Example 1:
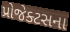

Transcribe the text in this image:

પ્રોજેક્ટસના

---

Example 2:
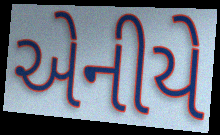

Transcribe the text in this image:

એનીયે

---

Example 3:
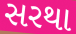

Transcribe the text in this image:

સરથા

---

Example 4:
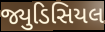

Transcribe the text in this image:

જ્યુડિસિયલ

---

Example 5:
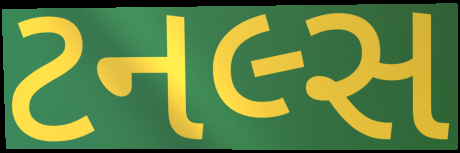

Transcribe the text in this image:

ટનલ્સ